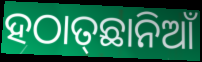
ହଠାତ୍‌ଛାନିଆଁ